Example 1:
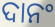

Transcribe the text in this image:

ଦାନଂ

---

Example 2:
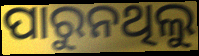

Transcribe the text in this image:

ପାରୁନଥିଲୁ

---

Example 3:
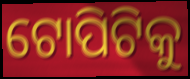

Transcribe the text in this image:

ଟୋପିଟିକୁ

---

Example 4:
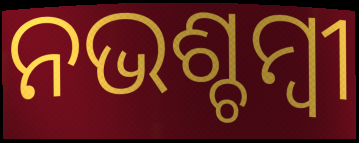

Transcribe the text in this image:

ନଭଶ୍ଚମ୍ବୀ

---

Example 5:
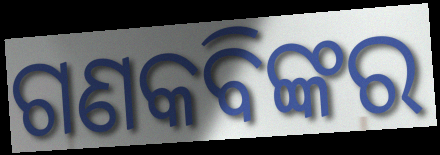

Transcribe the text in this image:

ଗଣକବିଙ୍କର